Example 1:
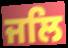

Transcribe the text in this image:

ਜਲਿ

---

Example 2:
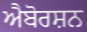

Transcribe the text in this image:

ਐਬੋਰਸ਼ਨ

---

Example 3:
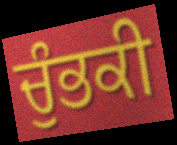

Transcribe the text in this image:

ਚੁੰਭਕੀ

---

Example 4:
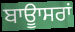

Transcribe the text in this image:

ਬਾਊਾਸਰਾਂ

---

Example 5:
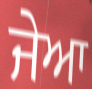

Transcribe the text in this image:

ਜੇਆ